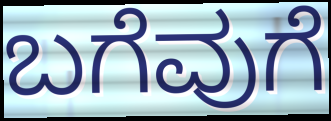
ಬಗೆವುಗೆ